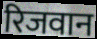
रिजवान